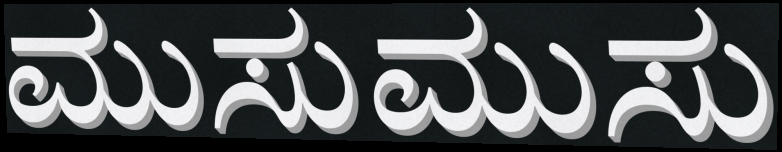
ಮುಸುಮುಸು